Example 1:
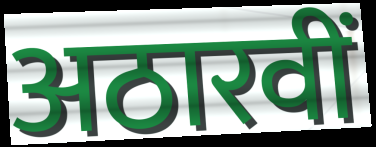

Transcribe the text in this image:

अठारवीं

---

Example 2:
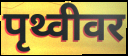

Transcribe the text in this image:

पृथ्वीवर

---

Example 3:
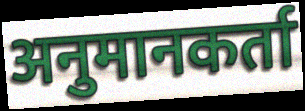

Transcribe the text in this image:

अनुमानकर्ता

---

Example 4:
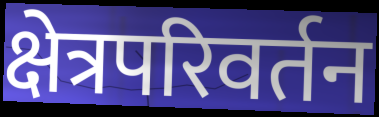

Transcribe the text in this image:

क्षेत्रपरिवर्तन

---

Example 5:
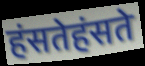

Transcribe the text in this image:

हंसतेहंसते